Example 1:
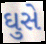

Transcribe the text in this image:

ઘુસે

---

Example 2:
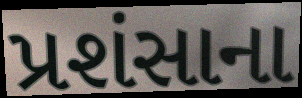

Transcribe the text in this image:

પ્રશંસાના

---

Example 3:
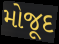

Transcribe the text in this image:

મોજૂદ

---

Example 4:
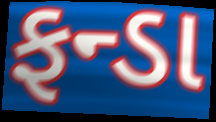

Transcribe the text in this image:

ફન્ડા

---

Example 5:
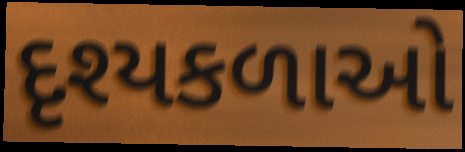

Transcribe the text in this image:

દૃશ્યકળાઓ